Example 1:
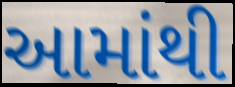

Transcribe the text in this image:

આમાંથી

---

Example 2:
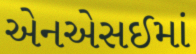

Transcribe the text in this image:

એનએસઈમાં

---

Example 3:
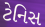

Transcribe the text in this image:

ટેનિસ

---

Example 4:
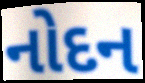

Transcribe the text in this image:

નોદન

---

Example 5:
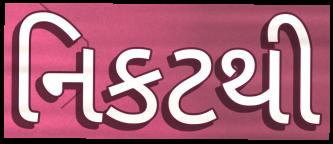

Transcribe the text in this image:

નિકટથી